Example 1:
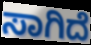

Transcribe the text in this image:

ಸಾಗಿದೆ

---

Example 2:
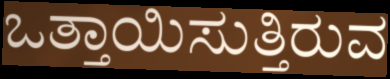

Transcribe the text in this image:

ಒತ್ತಾಯಿಸುತ್ತಿರುವ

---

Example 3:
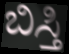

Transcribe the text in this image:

ಬಿಸ್ತಿ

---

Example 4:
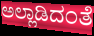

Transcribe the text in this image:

ಅಲ್ಲಾಡಿದಂತೆ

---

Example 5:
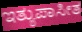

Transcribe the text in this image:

ಇತ್ಯುಪಾಸೀತ